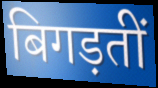
बिगड़तीं